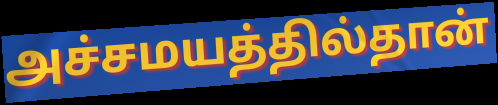
அச்சமயத்தில்தான்